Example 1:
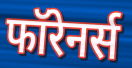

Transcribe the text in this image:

फॉरेनर्स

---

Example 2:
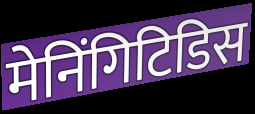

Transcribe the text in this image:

मेनिंगिटिडिस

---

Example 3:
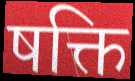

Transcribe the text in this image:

षक्ति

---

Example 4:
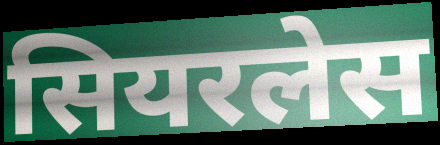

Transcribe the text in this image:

सियरलेस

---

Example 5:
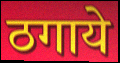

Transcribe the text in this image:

ठगाये